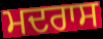
ਮਦਰਾਸ